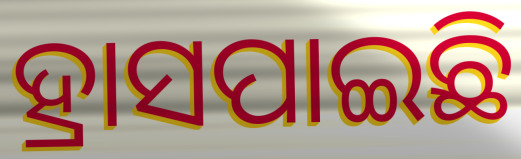
ହ୍ରାସପାଇଛି